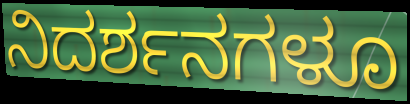
ನಿದರ್ಶನಗಳೂ